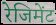
रेजिमेंट